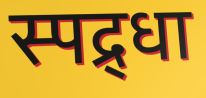
स्पद्र्धा